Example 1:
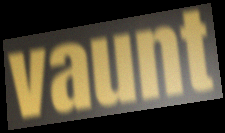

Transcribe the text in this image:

vaunt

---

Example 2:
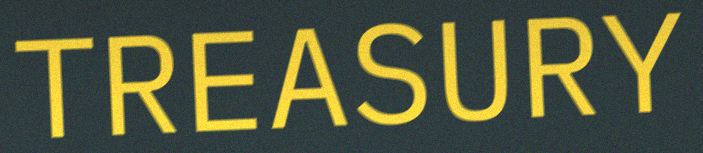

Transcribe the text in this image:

TREASURY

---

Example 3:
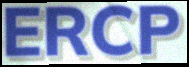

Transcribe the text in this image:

ERCP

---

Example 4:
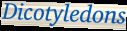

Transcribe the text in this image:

Dicotyledons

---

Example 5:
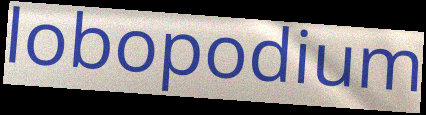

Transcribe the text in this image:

lobopodium